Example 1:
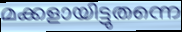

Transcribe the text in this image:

മക്കളായിട്ടുതന്നെ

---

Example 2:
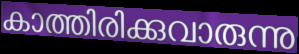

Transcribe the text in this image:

കാത്തിരിക്കുവാരുന്നു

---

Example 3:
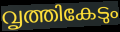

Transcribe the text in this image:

വൃത്തികേടും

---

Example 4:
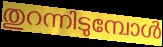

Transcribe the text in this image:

തുറന്നിടുമ്പോൾ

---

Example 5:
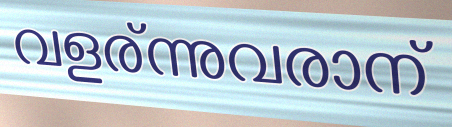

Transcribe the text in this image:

വളര്ന്നുവരാന്